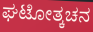
ಘಟೋತ್ಕಚನ